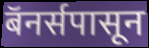
बॅनर्सपासून